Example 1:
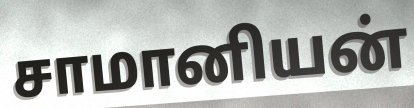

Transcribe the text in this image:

சாமானியன்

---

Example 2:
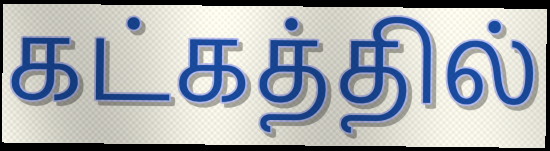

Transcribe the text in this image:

கட்கத்தில்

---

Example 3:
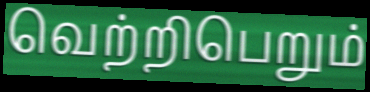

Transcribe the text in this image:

வெற்றிபெறும்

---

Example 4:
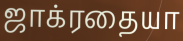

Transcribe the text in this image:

ஜாக்ரதையா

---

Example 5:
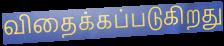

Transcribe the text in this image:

விதைக்கப்படுகிறது